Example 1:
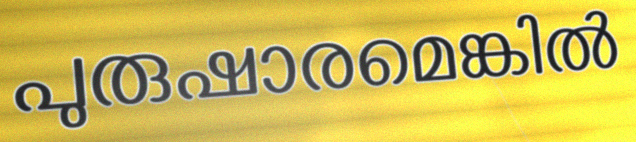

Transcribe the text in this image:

പുരുഷാരമെങ്കിൽ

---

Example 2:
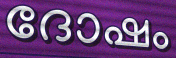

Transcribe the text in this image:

ദോഷം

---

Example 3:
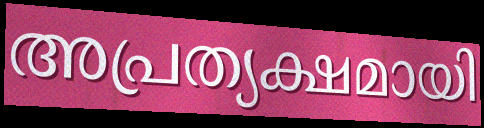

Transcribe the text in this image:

അപ്രത്യക്ഷമായി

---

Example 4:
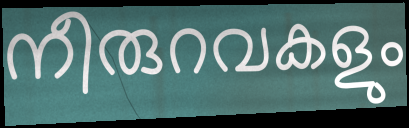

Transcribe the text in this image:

നീരുറവകളും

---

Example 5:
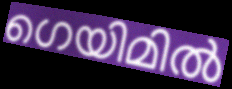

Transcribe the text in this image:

ഗെയിമിൽ